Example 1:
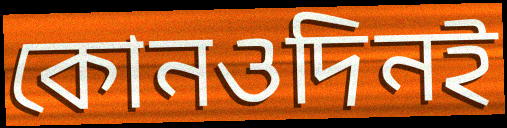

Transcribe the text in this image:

কোনওদিনই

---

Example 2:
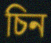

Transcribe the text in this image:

চিন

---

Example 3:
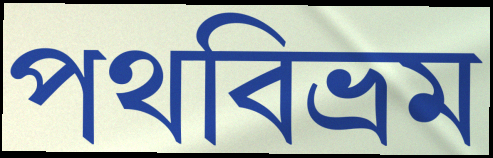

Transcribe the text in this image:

পথবিভ্রম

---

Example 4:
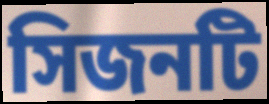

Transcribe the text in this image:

সিজনটি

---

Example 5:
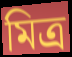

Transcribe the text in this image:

মিত্র